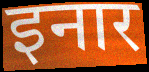
इनार